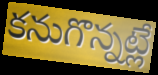
కనుగొన్నట్లే